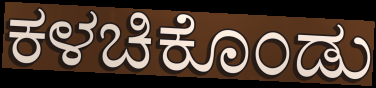
ಕಳಚಿಕೊಂಡು